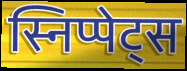
स्निप्पेट्स